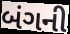
બંગની